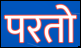
परतो